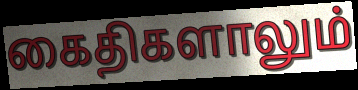
கைதிகளாலும்